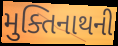
મુક્તિનાથની